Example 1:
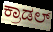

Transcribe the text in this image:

ಕ್ರಾಡಲ್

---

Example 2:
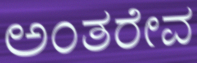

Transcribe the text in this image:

ಅಂತರೇವ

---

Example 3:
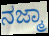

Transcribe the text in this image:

ನಜ್ಮಾ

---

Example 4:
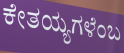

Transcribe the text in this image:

ಕೇತಯ್ಯಗಳೆಂಬ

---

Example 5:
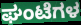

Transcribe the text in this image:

ಘಂಟೆಗಳ